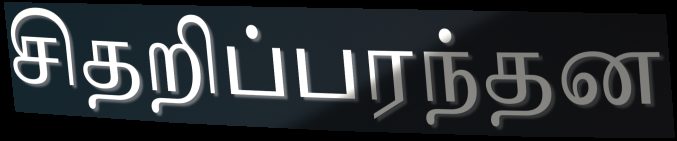
சிதறிப்பரந்தன